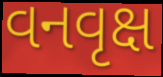
વનવૃક્ષ